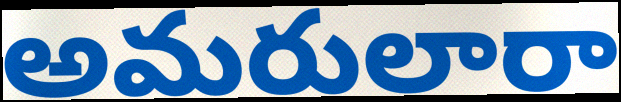
అమరులారా